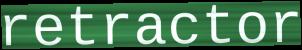
retractor